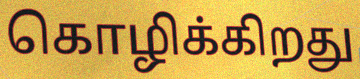
கொழிக்கிறது